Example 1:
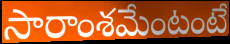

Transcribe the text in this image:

సారాంశమేంటంటే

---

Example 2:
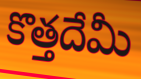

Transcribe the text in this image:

కొత్తదేమీ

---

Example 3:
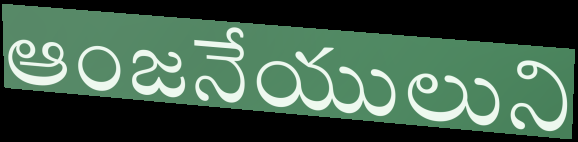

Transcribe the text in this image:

ఆంజనేయులుని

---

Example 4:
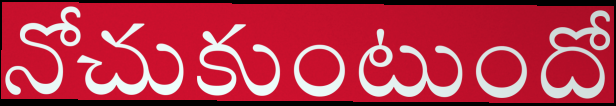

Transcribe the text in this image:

నోచుకుంటుందో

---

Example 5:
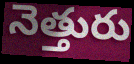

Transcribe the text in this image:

నెత్తురు